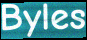
Byles